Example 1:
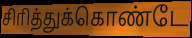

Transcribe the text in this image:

சிரித்துக்கொண்டே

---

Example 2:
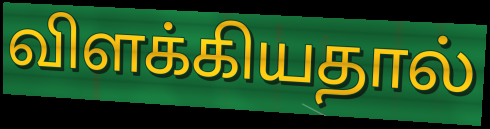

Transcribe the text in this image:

விளக்கியதால்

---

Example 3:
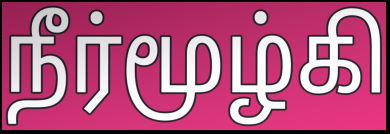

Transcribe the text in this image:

நீர்மூழ்கி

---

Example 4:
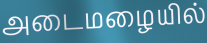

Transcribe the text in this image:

அடைமழையில்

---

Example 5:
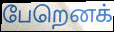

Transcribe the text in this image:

பேறெனக்